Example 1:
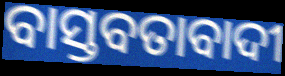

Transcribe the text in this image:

ବାସ୍ତବତାବାଦୀ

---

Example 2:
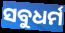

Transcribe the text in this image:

ସବୁଧର୍ମ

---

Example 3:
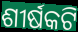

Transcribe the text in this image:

ଶୀର୍ଷକଟି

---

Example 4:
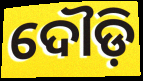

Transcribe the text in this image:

ଦୌଡ଼ି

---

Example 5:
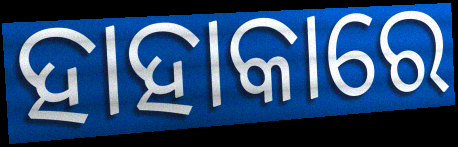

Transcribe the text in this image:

ହାହାକାରେ